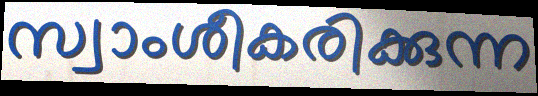
സ്വാംശീകരിക്കുന്ന